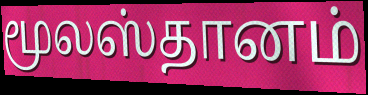
மூலஸ்தானம்